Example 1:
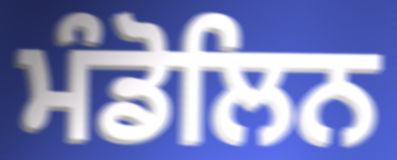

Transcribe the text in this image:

ਮੰਡੋਲਿਨ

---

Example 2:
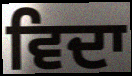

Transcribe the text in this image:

ਵਿਦਾ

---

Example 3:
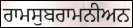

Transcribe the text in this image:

ਰਾਮਸੁਬਰਾਮਨੀਅਨ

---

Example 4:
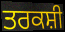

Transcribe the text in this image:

ਤਰਕਸ਼ੀ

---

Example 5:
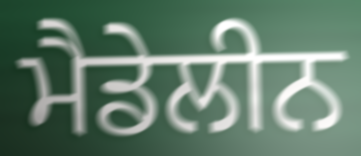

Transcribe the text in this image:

ਮੈਡੇਲੀਨ